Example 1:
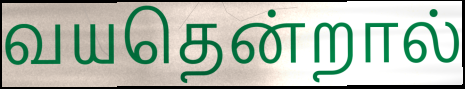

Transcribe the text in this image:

வயதென்றால்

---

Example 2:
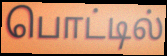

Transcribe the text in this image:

பொட்டில்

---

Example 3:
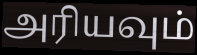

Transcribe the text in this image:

அரியவும்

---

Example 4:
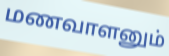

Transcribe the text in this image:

மணவாளனும்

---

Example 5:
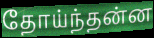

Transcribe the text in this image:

தோய்ந்தன்ன